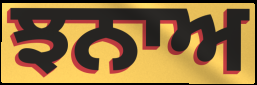
ਝਨਾਅ